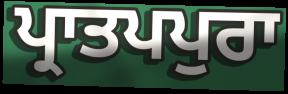
ਪ੍ਰਾਤਪਪੁਰਾ